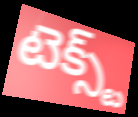
టెక్స్ట్